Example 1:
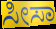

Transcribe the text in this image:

ಸೀಸಾ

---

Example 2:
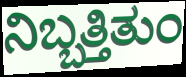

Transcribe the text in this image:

ನಿಬ್ಬತ್ತಿತುಂ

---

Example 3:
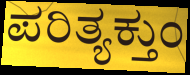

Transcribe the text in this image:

ಪರಿತ್ಯಕ್ತುಂ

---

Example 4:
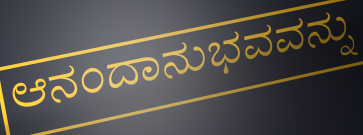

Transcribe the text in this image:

ಆನಂದಾನುಭವವನ್ನು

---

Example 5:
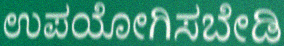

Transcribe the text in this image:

ಉಪಯೋಗಿಸಬೇಡಿ